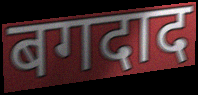
बगदाद